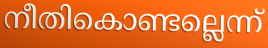
നീതികൊണ്ടല്ലെന്ന്